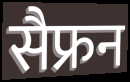
सैफ्रन